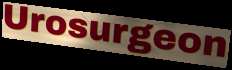
Urosurgeon